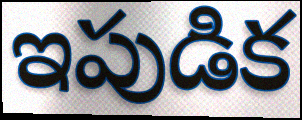
ఇపుడిక